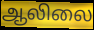
ஆலிலை